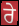
ਰੇ